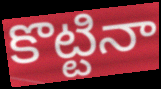
కొట్టినా